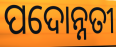
ପଦୋନ୍ନତୀ